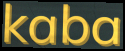
kaba